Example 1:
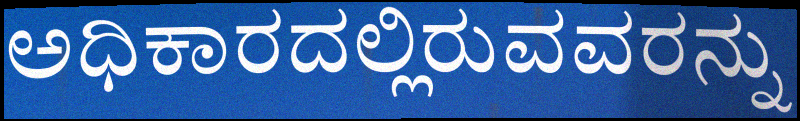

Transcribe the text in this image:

ಅಧಿಕಾರದಲ್ಲಿರುವವರನ್ನು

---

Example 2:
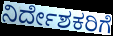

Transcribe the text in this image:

ನಿರ್ದೇಶಕರಿಗೆ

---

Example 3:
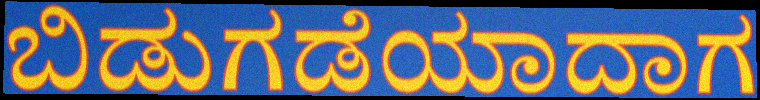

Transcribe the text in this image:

ಬಿಡುಗಡೆಯಾದಾಗ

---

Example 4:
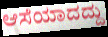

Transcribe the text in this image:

ಆಸೆಯಾದದ್ದು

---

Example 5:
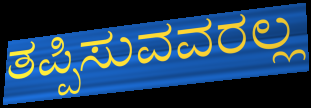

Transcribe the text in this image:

ತಪ್ಪಿಸುವವರಲ್ಲ